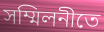
সম্মিলনীতে